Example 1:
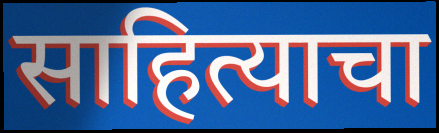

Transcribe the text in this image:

साहित्याचा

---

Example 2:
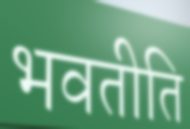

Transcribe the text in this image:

भवतीति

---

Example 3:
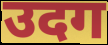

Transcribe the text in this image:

उदग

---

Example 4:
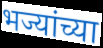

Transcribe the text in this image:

भज्यांच्या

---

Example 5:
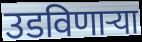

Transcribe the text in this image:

उडविणार्‍या